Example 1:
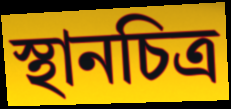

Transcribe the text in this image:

স্থানচিত্র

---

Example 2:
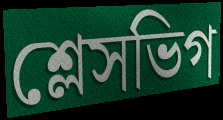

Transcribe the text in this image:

শ্লেসভিগ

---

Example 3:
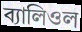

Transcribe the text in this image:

ব্যালিওল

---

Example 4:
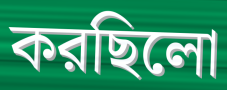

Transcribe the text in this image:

করছিলো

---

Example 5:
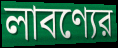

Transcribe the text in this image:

লাবণ্যের